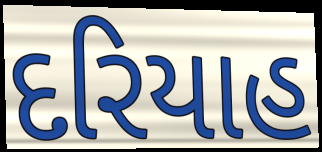
દરિયાહ